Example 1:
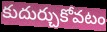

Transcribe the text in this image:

కుదుర్చుకోవటం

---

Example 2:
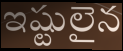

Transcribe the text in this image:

ఇష్టులైన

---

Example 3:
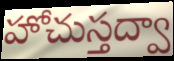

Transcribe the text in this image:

హోచుస్తద్వా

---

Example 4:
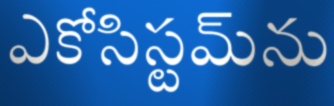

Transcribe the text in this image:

ఎకోసిస్టమ్‌ను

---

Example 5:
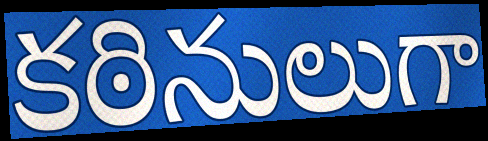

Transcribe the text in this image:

కఠినులుగా